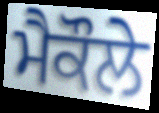
ਮੈਕੌਲੇ